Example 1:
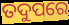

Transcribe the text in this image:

ତଦୁପରେ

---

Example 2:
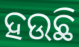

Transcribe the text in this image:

ହଉଛି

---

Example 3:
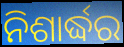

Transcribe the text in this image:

ନିଶାର୍ଦ୍ଧର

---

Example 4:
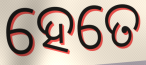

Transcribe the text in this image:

ହେତେ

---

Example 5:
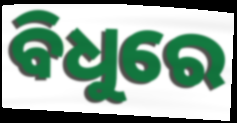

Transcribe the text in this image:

ବିଧୁରେ